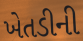
ખેતડીની